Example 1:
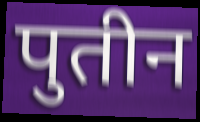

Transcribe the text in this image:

पुतीन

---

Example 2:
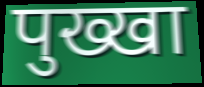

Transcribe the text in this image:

पुख्खा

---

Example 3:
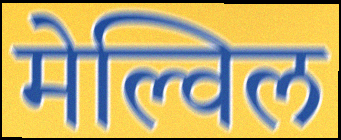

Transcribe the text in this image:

मेल्विल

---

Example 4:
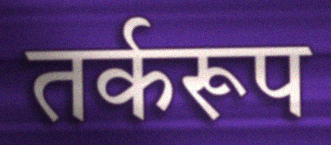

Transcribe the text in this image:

तर्करूप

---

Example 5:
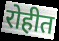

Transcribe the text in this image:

रोहीत